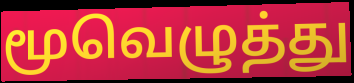
மூவெழுத்து